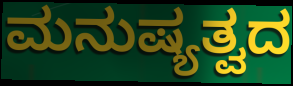
ಮನುಷ್ಯತ್ವದ